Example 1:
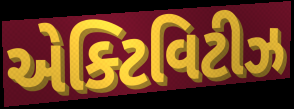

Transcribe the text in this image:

એક્ટિવિટીઝ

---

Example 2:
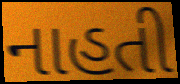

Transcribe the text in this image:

નાહતી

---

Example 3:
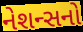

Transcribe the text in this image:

નેશન્સનો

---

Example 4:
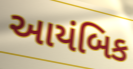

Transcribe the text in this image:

આયંબિક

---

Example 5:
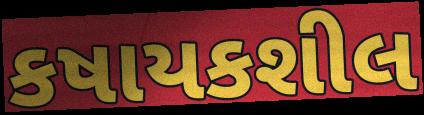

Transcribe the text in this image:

કષાયકશીલ